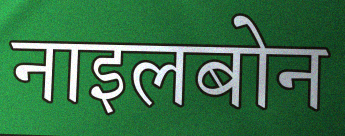
नाइलबोन